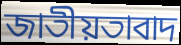
জাতীয়তাবাদ